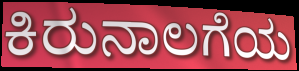
ಕಿರುನಾಲಗೆಯ